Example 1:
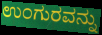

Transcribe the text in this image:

ಉಂಗುರವನ್ನು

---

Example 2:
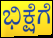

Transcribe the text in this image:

ಭಿಕ್ಷೆಗೆ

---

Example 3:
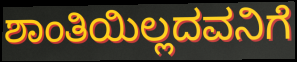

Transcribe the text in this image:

ಶಾಂತಿಯಿಲ್ಲದವನಿಗೆ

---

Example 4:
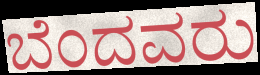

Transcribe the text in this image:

ಬೆಂದವರು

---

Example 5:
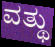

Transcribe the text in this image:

ವತ್ಥು